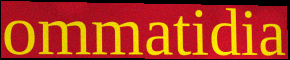
ommatidia